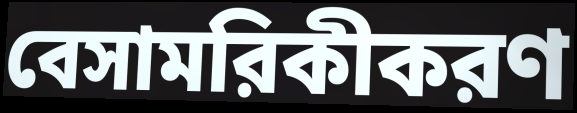
বেসামরিকীকরণ